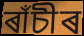
ৰাঁচীৰ